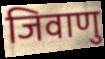
जिवाणु